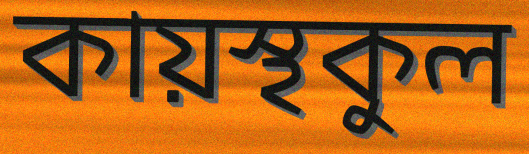
কায়স্থকুল